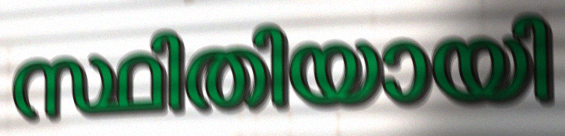
സ്ഥിതിയായി